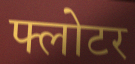
फ्लोटर